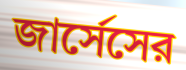
জার্সেসের